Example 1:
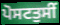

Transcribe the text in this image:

ਪੋਸਟਤੁਸੀਂ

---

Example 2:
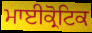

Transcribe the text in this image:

ਮਾਈਕ੍ਰੋਟਿਕ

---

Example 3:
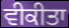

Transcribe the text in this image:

ਵੀਕੀਤਾ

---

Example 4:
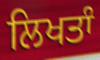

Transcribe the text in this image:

ਲਿਖਤਾੰ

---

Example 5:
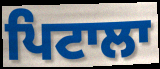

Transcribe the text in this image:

ਪਿਟਾਲਾ